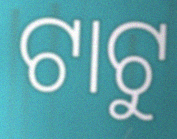
ଟାଟୁ